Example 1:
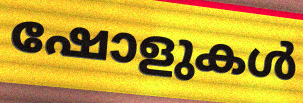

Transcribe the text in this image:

ഷോളുകൾ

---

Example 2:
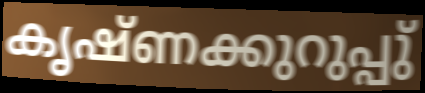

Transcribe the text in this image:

കൃഷ്ണക്കുറുപ്പു്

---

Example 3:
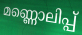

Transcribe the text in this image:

മണ്ണൊലിപ്പ്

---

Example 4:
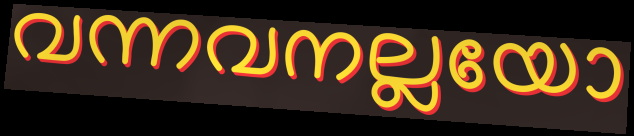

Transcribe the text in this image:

വന്നവനല്ലയോ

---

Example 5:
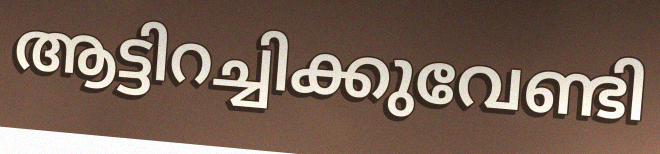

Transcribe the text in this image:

ആട്ടിറച്ചിക്കുവേണ്ടി